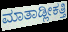
ಮಾತಾಡ್ಲೀಕತ್ತಿ